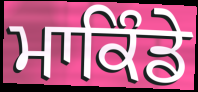
ਮਾਕਿੰਡੇ